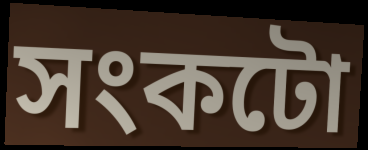
সংকটো